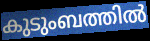
കുടുംബത്തിൽ